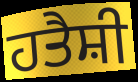
ਹਤੈਸ਼ੀ